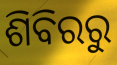
ଶିବିରରୁ